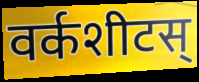
वर्कशीटस्